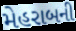
મેહરાબની